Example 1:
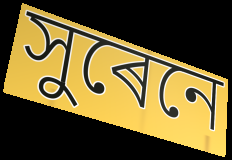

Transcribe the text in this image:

সুৰেনে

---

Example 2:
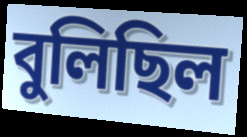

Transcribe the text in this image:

বুলিছিল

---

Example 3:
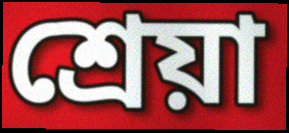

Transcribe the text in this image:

শ্ৰেয়া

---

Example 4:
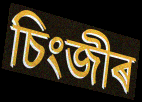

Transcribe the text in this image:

চিংজীৰ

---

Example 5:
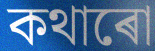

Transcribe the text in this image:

কথাৰো